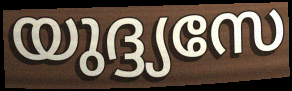
യുദ്ദ്യസേ